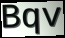
Bqv